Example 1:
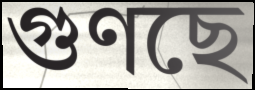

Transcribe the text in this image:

গুণছে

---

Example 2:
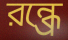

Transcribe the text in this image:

রন্ধ্রে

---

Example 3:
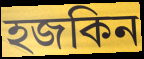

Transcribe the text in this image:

হজকিন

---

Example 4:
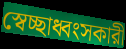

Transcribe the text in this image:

স্বেচ্ছাধ্বংসকারী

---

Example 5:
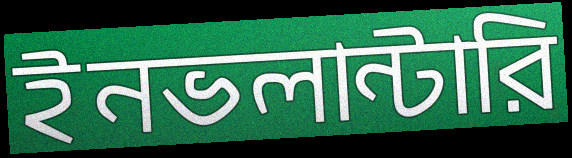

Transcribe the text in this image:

ইনভলান্টারি